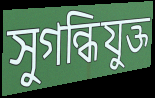
সুগন্ধিযুক্ত